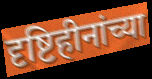
दृष्टिहीनांच्या